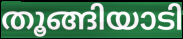
തൂങ്ങിയാടി